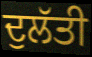
ਦੁਲੱਤੀ